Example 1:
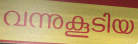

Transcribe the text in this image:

വന്നുകൂടിയ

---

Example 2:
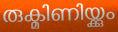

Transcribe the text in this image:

രുക്മിണിയ്ക്കും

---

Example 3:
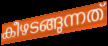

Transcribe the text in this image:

കീഴടങ്ങുന്നത്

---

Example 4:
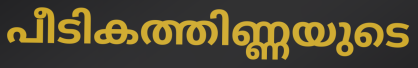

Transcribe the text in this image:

പീടികത്തിണ്ണയുടെ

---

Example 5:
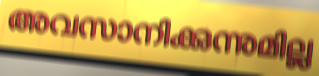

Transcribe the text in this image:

അവസാനിക്കുന്നുമില്ല